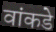
वांकडे